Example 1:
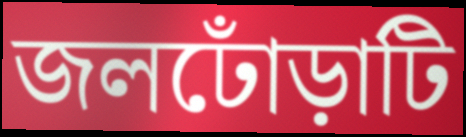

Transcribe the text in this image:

জলঢোঁড়াটি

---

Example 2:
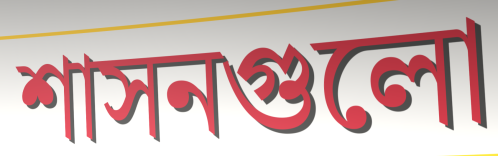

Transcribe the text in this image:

শাসনগুলো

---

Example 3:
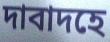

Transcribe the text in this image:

দাবাদহে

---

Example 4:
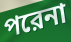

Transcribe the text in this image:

পরেনা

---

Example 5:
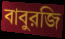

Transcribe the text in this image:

বাবুরজি